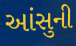
આંસુની